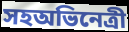
সহঅভিনেত্রী